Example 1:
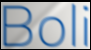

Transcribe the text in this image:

Boli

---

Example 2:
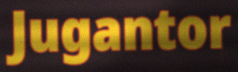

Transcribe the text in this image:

Jugantor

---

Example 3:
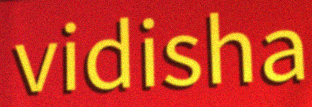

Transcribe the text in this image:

vidisha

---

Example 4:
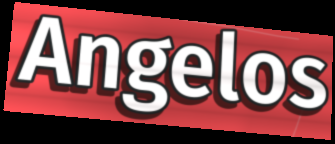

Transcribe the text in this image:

Angelos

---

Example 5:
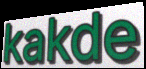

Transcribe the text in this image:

kakde